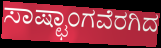
ಸಾಷ್ಟಾಂಗವೆರಗಿದ